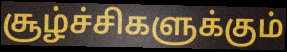
சூழ்ச்சிகளுக்கும்